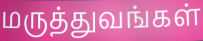
மருத்துவங்கள்